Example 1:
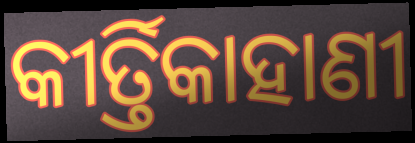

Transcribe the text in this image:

କୀର୍ତ୍ତିକାହାଣୀ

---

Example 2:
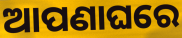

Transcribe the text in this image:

ଆପଣାଘରେ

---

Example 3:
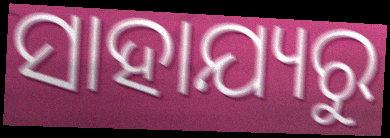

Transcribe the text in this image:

ସାହାଯ୍ୟରୁ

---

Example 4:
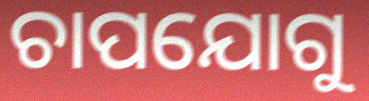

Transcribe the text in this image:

ଚାପଯୋଗୁ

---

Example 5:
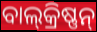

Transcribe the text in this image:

ବାଲ୍‍କ୍ରିଷ୍ଣନ୍